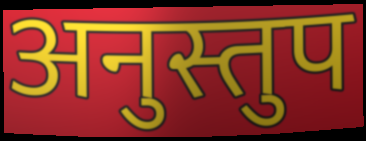
अनुस्तुप